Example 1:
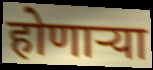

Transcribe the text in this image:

होणाऱ्या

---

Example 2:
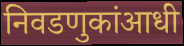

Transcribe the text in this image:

निवडणुकांआधी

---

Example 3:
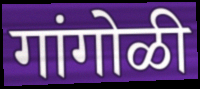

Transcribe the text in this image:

गांगोळी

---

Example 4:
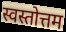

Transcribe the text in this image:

स्वस्तोत्तम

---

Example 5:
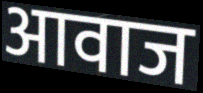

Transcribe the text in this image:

आवाज